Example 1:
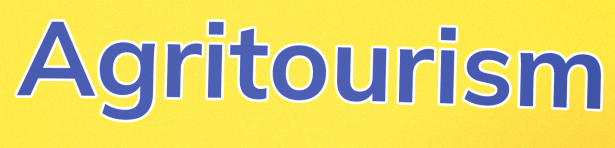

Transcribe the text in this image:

Agritourism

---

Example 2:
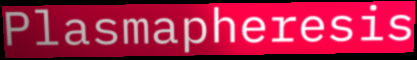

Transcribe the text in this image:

Plasmapheresis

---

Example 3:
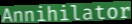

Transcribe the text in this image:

Annihilator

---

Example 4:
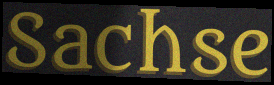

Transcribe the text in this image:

Sachse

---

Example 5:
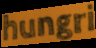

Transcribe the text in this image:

hungri